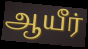
ஆயீர்